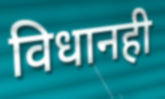
विधानही